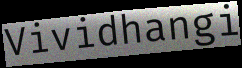
Vividhangi